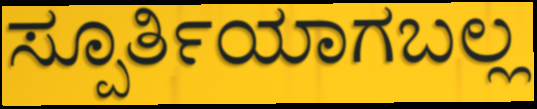
ಸ್ಪೂರ್ತಿಯಾಗಬಲ್ಲ